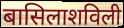
बासिलाशविली